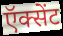
ऍक्सेंट